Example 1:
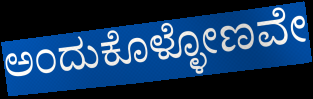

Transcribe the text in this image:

ಅಂದುಕೊಳ್ಳೋಣವೇ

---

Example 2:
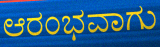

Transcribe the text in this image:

ಆರಂಭವಾಗು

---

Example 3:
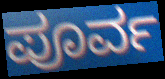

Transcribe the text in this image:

ಪೂರ್ವ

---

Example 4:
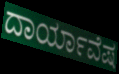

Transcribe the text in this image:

ದಾರ್ಯಾವೆಷ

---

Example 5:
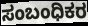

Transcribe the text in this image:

ಸಂಬಂಧಿಕರ